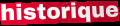
historique